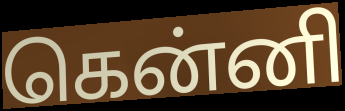
கென்னி